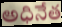
అధినేత